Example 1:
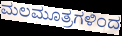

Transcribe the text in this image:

ಮಲಮೂತ್ರಗಳಿಂದ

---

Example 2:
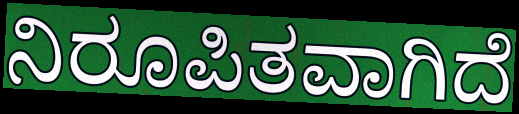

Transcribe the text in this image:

ನಿರೂಪಿತವಾಗಿದೆ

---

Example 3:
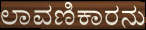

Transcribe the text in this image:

ಲಾವಣಿಕಾರನು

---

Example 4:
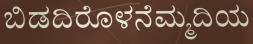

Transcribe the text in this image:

ಬಿಡದಿರೊಳನೆಮ್ಮದಿಯ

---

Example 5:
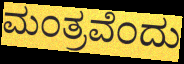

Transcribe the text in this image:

ಮಂತ್ರವೆಂದು